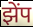
झेंप